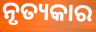
ନୃତ୍ୟକାର